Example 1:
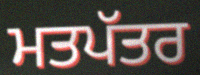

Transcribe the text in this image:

ਮਤਪੱਤਰ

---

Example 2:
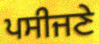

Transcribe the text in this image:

ਪਸੀਜਣੇ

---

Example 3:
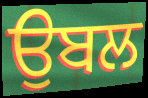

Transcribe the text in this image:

ਉਬਲ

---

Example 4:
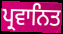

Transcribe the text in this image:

ਪ੍ਰਵਾਨਿਤ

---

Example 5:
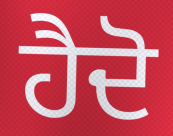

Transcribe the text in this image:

ਹੈਦੋ